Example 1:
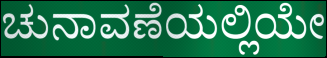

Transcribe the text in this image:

ಚುನಾವಣೆಯಲ್ಲಿಯೇ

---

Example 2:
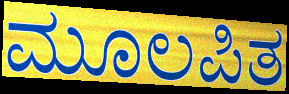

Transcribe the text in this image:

ಮೂಲಪಿತ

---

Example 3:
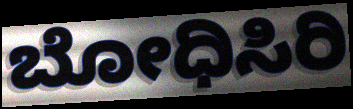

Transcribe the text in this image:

ಬೋಧಿಸಿರಿ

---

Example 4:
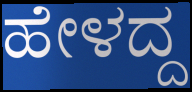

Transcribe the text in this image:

ಹೇಳದ್ದ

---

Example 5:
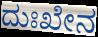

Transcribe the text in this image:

ದುಃಖೇನ